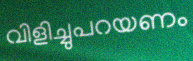
വിളിച്ചുപറയണം